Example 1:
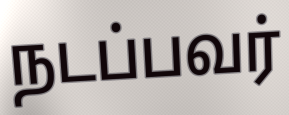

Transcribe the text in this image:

நடப்பவர்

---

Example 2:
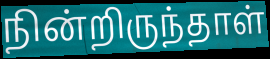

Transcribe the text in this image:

நின்றிருந்தாள்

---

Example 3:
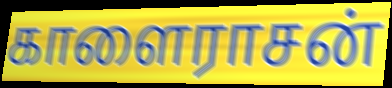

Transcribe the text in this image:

காளைராசன்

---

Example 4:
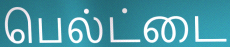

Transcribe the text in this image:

பெல்ட்டை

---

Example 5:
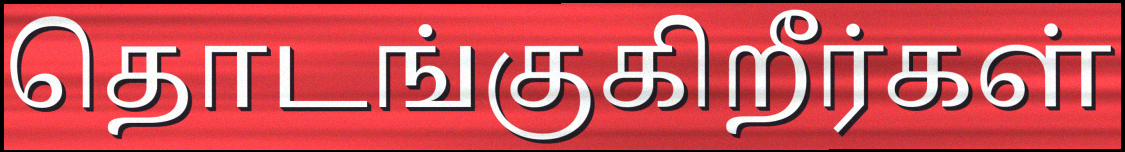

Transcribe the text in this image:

தொடங்குகிறீர்கள்